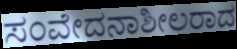
ಸಂವೇದನಾಶೀಲರಾದ